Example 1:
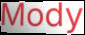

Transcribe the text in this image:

Mody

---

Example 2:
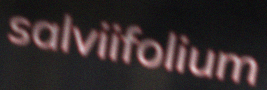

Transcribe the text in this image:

salviifolium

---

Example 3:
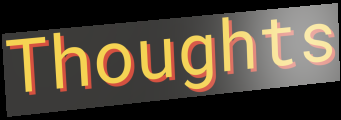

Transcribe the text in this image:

Thoughts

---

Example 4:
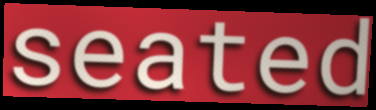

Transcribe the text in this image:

seated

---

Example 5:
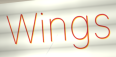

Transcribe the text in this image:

Wings